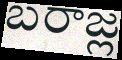
బరాజ్ల